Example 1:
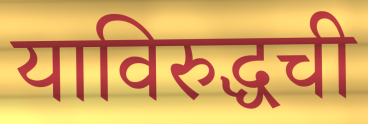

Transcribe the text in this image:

याविरुद्धची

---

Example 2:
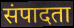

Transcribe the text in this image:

संपादता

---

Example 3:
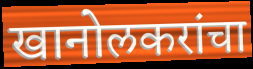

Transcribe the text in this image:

खानोलकरांचा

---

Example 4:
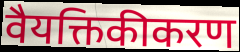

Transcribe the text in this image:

वैयक्तिकीकरण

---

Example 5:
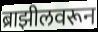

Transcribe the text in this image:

ब्राझीलवरून